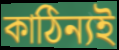
কাঠিন্যই